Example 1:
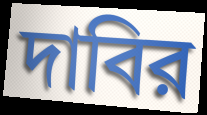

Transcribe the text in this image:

দাবির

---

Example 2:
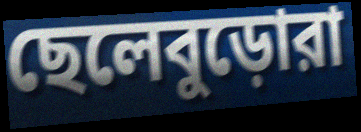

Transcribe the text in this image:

ছেলেবুড়োরা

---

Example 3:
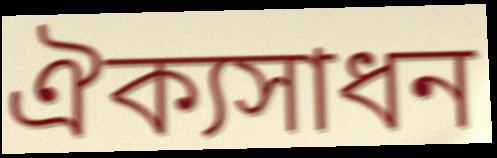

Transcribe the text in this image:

ঐক্যসাধন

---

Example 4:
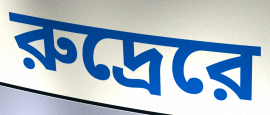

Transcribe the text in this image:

রুদ্রেরে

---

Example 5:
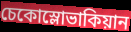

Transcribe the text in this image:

চেকোস্লোভাকিয়ান